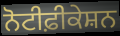
ਨੋਟੀਫ਼ੀਕੇਸ਼ਨ